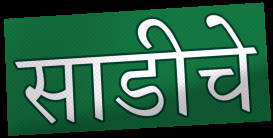
साडीचे